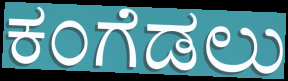
ಕಂಗೆಡಲು